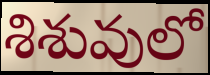
శిశువులో